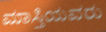
ಮಾಸ್ತಿಯವರು